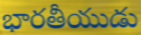
భారతీయుడు